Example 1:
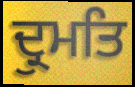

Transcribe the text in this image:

ਦ੍ਰੁਮਤਿ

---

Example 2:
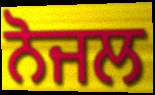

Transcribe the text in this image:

ਨੋਜਲ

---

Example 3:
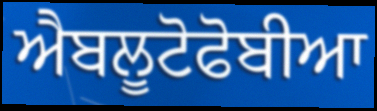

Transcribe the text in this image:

ਐਬਲੂਟੋਫੋਬੀਆ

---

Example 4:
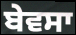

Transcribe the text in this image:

ਬੇਵਸਾ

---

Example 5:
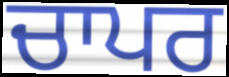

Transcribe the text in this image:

ਚਾਪਰ